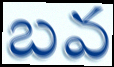
బవ